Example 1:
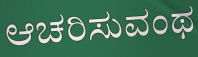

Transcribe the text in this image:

ಆಚರಿಸುವಂಥ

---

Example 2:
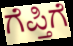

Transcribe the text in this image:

ಗೆಪ್ತಿಗೆ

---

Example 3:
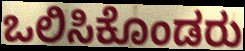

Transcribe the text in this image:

ಒಲಿಸಿಕೊಂಡರು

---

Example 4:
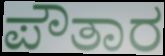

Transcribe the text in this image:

ಪೌತಾರ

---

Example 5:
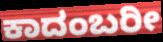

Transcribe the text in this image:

ಕಾದಂಬರೀ